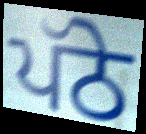
ਪੱਠੇ